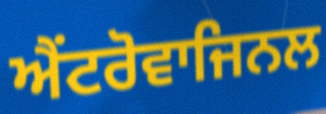
ਐਂਟਰੋਵਾਜਿਨਲ